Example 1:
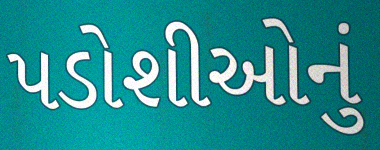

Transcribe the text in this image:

પડોશીઓનું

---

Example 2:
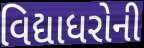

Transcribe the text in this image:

વિદ્યાધરોની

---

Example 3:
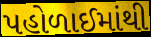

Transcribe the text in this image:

પહોળાઈમાંથી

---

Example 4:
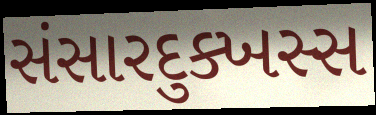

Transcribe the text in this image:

સંસારદુક્ખસ્સ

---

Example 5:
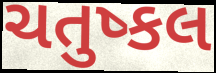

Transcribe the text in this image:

ચતુષ્કલ